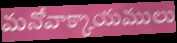
మనోవాక్కాయములు